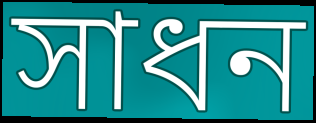
সাধন